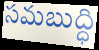
సమబుద్ధి